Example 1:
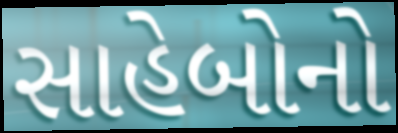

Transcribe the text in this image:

સાહેબોનો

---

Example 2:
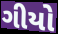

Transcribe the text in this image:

ગીયો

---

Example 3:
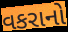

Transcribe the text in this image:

વકરાનો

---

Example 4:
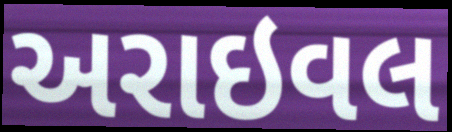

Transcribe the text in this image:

અરાઇવલ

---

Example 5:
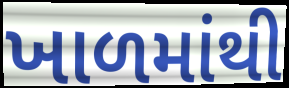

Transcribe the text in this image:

ખાળમાંથી